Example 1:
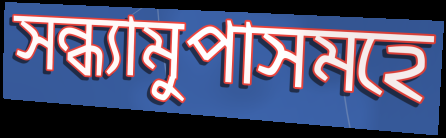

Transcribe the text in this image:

সন্ধ্যামুপাসমহে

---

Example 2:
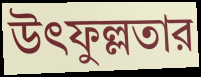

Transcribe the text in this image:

উৎফুল্লতার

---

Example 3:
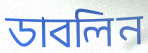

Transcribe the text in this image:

ডাবলিন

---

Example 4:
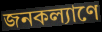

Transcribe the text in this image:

জনকল্যাণে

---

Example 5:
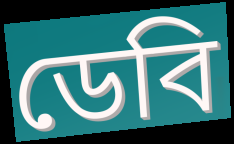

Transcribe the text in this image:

ডেবি